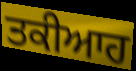
ਤਕੀਆਹ